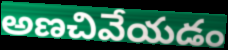
అణచివేయడం